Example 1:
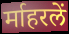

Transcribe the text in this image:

र्माहरलें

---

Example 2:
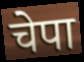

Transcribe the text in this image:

चेपा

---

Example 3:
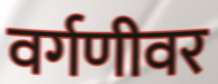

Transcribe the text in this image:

वर्गणीवर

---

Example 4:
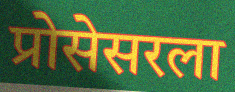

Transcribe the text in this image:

प्रोसेसरला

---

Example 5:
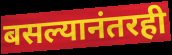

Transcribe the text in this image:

बसल्यानंतरही